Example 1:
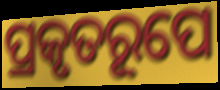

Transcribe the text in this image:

ପ୍ରକୃତରୂପେ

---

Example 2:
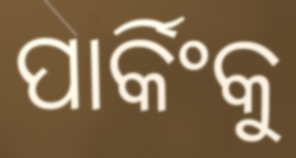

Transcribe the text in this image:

ପାର୍କିଂକୁ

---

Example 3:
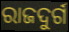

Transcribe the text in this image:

ରାଜଦୁର୍ଗ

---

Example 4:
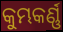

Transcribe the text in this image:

କୁମ୍ଭକର୍ଣ୍ଣ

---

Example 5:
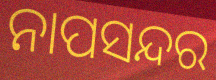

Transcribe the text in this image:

ନାପସନ୍ଦର